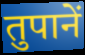
तुपानें